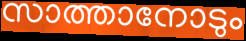
സാത്താനോടും